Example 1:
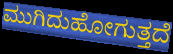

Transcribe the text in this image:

ಮುಗಿದುಹೋಗುತ್ತದೆ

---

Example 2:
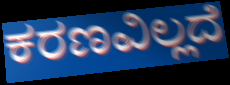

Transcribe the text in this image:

ಕರಣವಿಲ್ಲದೆ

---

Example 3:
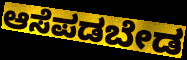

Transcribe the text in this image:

ಆಸೆಪಡಬೇಡ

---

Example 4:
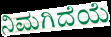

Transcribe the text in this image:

ನಿಮಗಿದೆಯೆ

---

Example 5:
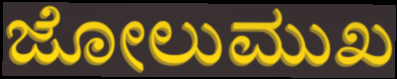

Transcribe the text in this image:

ಜೋಲುಮುಖ